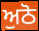
ਅੁਠੋ